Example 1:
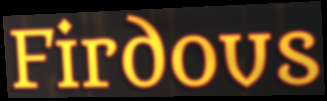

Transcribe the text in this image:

Firdous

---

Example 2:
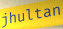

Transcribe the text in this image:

jhultan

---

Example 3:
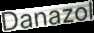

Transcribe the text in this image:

Danazol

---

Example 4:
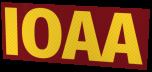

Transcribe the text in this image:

IOAA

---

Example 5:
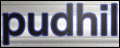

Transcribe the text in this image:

pudhil